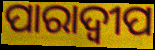
ପାରାଦ୍ୱୀପ